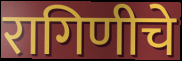
रागिणीचे